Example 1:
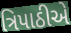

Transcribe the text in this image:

ત્રિપાઠીએ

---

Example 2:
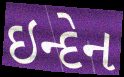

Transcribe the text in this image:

ઇન્દેન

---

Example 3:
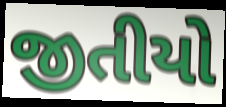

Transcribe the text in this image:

જીતીયો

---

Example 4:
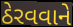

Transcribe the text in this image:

ઠેરવવાને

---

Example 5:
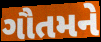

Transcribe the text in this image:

ગૌતમને